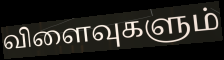
விளைவுகளும்